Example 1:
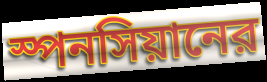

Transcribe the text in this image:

স্পনসিয়ানের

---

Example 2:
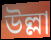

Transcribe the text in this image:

উল্লা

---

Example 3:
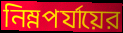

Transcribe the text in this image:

নিম্নপর্যায়ের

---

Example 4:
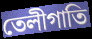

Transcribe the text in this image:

তেলীগাতি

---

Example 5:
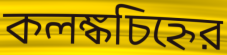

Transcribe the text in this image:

কলঙ্কচিহ্নের